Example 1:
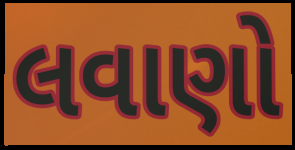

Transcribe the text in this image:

લવાણો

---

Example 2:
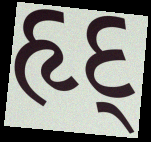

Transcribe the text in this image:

હૃદ્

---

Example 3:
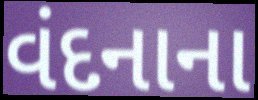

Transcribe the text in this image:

વંદનાના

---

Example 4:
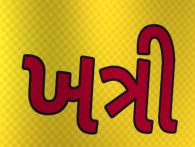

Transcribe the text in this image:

ખત્રી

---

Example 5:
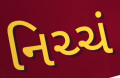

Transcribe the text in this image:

નિચ્ચં